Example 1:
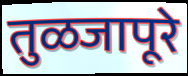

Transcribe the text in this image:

तुळजापूरे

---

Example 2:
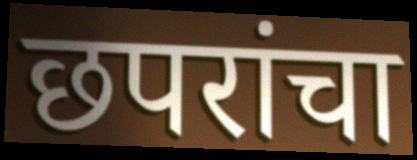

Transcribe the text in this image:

छपरांचा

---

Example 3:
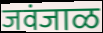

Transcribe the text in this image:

जवंजाळ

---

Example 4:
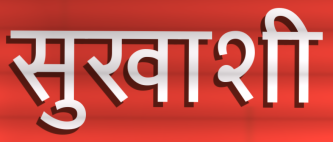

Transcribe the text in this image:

सुखाशी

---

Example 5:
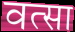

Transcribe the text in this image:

वत्सा